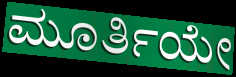
ಮೂರ್ತಿಯೇ